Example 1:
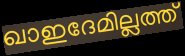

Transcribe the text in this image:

ഖാഇദേമില്ലത്ത്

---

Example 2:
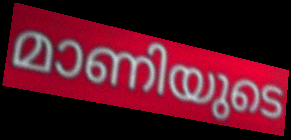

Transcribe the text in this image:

മാണിയുടെ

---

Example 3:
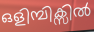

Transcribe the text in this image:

ഒളിമ്പിക്സിൽ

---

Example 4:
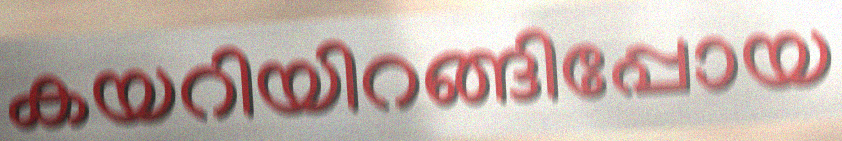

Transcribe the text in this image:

കയറിയിറങ്ങിപ്പോയ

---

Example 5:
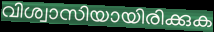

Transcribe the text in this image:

വിശ്വാസിയായിരിക്കുക